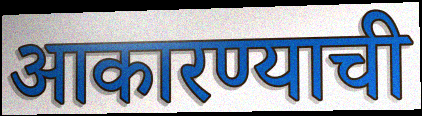
आकारण्याची